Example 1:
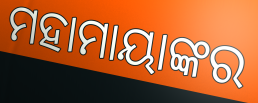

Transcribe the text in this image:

ମହାମାୟାଙ୍କର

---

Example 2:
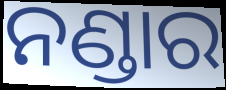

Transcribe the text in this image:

ନଣ୍ଡାର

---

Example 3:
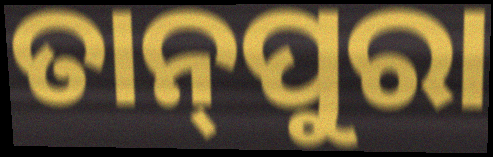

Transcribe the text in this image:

ତାନ୍‌ପୁରା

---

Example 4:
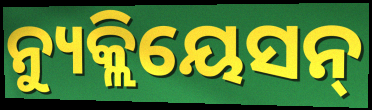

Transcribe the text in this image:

ନ୍ୟୁକ୍ଲିୟେସନ୍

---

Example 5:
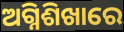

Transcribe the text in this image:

ଅଗ୍ନିଶିଖାରେ